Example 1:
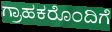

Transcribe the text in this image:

ಗ್ರಾಹಕರೊಂದಿಗೆ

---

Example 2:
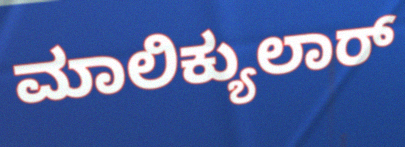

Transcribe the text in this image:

ಮಾಲಿಕ್ಯುಲಾರ್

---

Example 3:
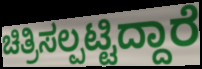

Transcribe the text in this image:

ಚಿತ್ರಿಸಲ್ಪಟ್ಟಿದ್ದಾರೆ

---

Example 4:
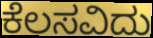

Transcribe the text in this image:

ಕೆಲಸವಿದು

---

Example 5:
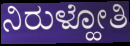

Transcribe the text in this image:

ನಿರುಳ್ಹೋತಿ